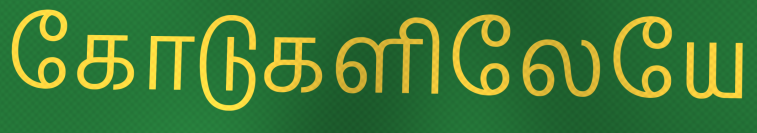
கோடுகளிலேயே